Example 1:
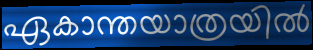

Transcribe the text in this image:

ഏകാന്തയാത്രയിൽ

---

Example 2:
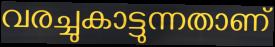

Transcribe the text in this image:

വരച്ചുകാട്ടുന്നതാണ്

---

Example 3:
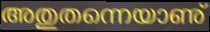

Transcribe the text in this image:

അതുതന്നെയാണു്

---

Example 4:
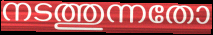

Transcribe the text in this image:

നടത്തുന്നതോ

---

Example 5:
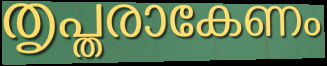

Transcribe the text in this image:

തൃപ്തരാകേണം